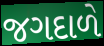
જગદાળે